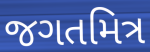
જગતમિત્ર